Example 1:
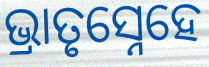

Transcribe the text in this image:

ଭ୍ରାତୃସ୍ନେହେ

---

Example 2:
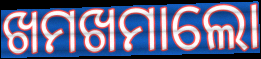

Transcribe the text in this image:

ଖମଖମାଲୋ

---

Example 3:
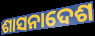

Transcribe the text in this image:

ଶାସନାଦେଶ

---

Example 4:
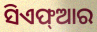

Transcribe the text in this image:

ସିଏଫ୍ଆର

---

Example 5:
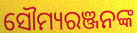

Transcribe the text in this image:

ସୌମ୍ୟରଞ୍ଜନଙ୍କ